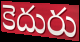
కెదురు